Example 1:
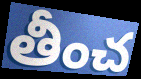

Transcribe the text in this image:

తీంచ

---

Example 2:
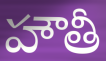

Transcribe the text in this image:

హౌతీ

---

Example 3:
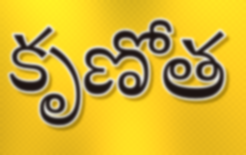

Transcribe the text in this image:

కృణోత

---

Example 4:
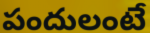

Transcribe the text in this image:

పందులంటే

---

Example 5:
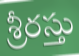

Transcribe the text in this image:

శ్రీరస్తు